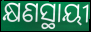
କ୍ଷଣସ୍ଥାୟୀ